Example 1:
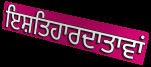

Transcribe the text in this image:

ਇਸ਼ਤਿਹਾਰਦਾਤਾਵਾਂ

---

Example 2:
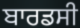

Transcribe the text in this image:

ਬਾਰਡਸੀ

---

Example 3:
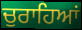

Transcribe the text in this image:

ਚੁਰਾਹਿਆਂ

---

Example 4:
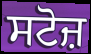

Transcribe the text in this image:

ਸਟੋਜ਼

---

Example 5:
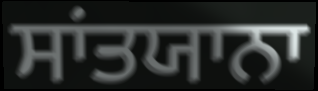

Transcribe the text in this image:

ਸਾਂਤਯਾਨਾ